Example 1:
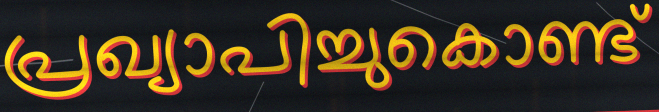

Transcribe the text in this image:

പ്രഖ്യാപിച്ചുകൊണ്ട്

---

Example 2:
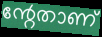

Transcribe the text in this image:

ന്റേതാണ്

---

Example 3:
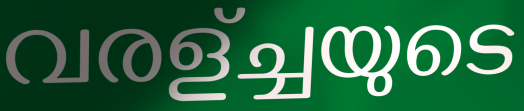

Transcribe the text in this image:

വരള്ച്ചയുടെ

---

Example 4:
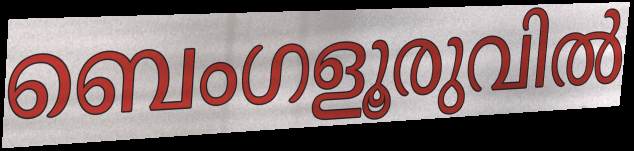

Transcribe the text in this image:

ബെംഗളൂരുവിൽ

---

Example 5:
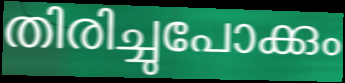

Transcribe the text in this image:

തിരിച്ചുപോക്കും